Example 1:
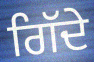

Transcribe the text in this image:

ਗਿੱਦੇ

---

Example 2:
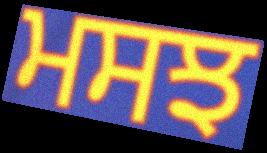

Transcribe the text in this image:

ਮਸਝ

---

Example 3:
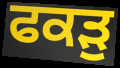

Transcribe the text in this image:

ਫਕੜੁ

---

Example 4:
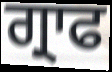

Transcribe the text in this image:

ਗ੍ਰਾਫ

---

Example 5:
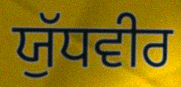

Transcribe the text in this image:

ਯੁੱਧਵੀਰ